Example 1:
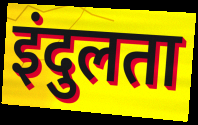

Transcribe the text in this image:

इंदुलता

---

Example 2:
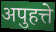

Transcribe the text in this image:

अपुहत्ते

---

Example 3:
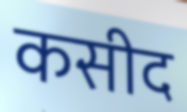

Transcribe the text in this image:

कसीद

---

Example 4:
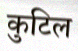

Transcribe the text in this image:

कुटिल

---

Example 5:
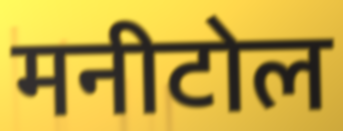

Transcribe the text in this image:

मनीटोल